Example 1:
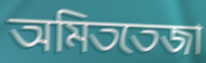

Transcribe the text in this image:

অমিততেজা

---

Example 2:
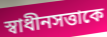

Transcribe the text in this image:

স্বাধীনসত্তাকে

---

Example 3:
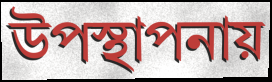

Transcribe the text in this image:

উপস্থাপনায়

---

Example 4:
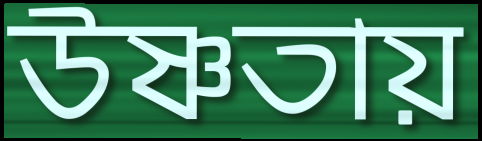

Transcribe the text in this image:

উষ্ণতায়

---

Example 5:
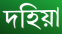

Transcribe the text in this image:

দহিয়া